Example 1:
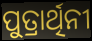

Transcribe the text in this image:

ପୁତ୍ରାର୍ଥିନୀ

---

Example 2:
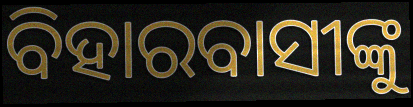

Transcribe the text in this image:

ବିହାରବାସୀଙ୍କୁ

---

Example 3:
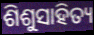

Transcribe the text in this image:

ଶିଶୁସାହିତ୍ୟ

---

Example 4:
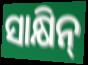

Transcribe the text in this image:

ସାକ୍ଷିନ୍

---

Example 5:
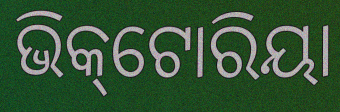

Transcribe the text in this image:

ଭିକ୍‌ଟୋରିୟା